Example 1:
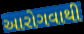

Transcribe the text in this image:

આરોગવાથી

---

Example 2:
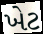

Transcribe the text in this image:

ખેટ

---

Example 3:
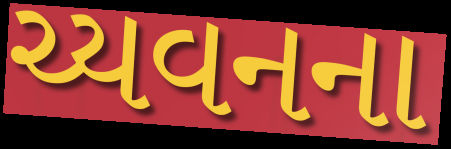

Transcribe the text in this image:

ચ્યવનના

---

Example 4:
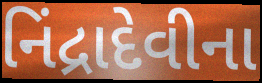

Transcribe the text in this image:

નિંદ્રાદેવીના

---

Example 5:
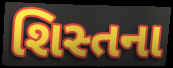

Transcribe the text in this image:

શિસ્તના